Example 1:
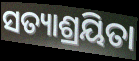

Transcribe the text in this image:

ସତ୍ୟାଶ୍ରୟିତା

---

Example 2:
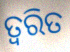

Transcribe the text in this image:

ତ୍ବରିତ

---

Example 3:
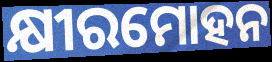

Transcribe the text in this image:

କ୍ଷୀରମୋହନ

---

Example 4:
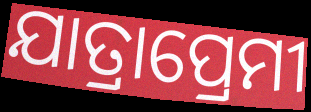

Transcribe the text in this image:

ଯାତ୍ରାପ୍ରେମୀ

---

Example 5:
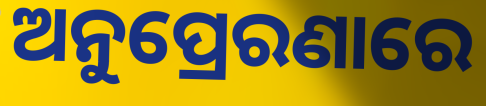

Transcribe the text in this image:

ଅନୁପ୍ରେରଣାରେ